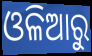
ଓଳିଆରୁ